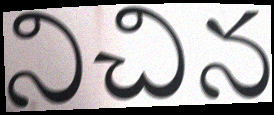
నిచిన